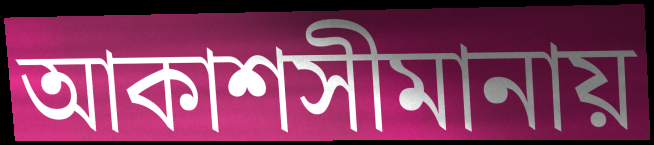
আকাশসীমানায়